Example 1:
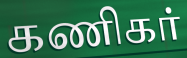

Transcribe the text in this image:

கணிகர்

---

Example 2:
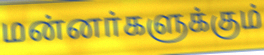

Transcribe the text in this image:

மன்னர்களுக்கும்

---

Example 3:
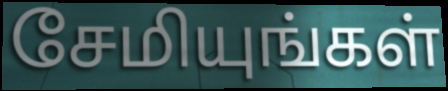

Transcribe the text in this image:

சேமியுங்கள்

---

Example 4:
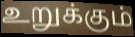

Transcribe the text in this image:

உறுக்கும்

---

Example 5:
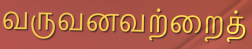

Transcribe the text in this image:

வருவனவற்றைத்